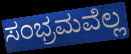
ಸಂಭ್ರಮವೆಲ್ಲ